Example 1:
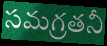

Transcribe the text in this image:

సమగ్రతనీ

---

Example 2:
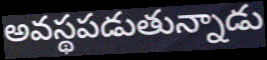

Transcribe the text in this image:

అవస్థపడుతున్నాడు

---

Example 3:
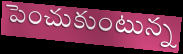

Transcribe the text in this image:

పెంచుకుంటున్న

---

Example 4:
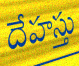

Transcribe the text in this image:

దేహస్తు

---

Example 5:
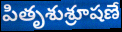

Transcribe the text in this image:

పితృశుశ్రూషణే